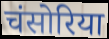
चंसोरिया